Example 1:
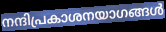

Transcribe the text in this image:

നന്ദിപ്രകാശനയാഗങ്ങൾ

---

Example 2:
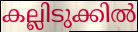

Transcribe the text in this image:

കല്ലിടുക്കിൽ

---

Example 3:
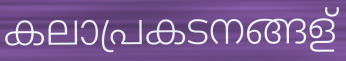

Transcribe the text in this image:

കലാപ്രകടനങ്ങള്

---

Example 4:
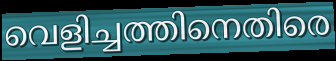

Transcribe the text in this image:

വെളിച്ചത്തിനെതിരെ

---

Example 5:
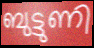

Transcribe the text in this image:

ബുട്ടുണി